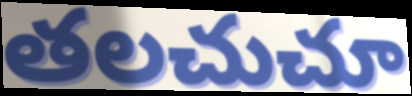
తలచుచూ